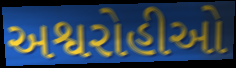
અશ્વરોહીઓ